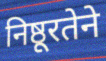
निष्ठूरतेने